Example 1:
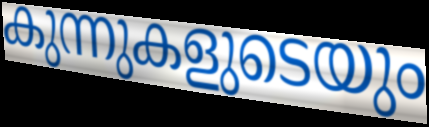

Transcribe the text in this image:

കുന്നുകളുടെയും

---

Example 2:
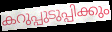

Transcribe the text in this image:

കറുപ്പുടുപ്പിക്കും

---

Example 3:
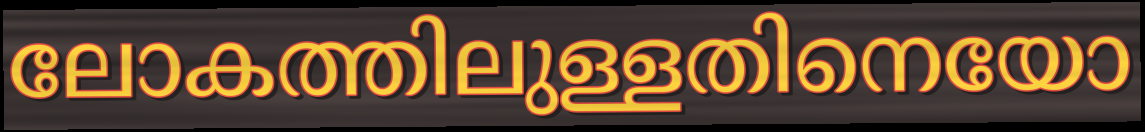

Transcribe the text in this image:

ലോകത്തിലുള്ളതിനെയോ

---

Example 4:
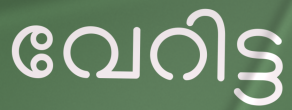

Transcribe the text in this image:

വേറിട്ട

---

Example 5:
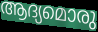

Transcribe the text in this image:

ആദ്യമൊരു